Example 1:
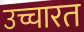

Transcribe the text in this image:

उच्चारत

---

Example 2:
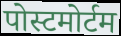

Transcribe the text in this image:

पोस्टमोर्टम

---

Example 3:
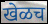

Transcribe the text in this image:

खेळच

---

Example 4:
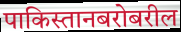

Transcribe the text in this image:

पाकिस्तानबरोबरील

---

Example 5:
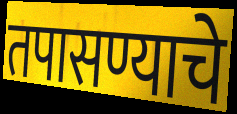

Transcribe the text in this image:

तपासण्याचे